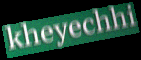
kheyechhi